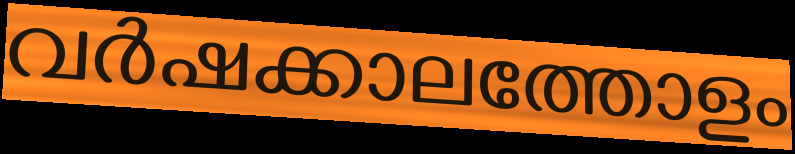
വർഷക്കാലത്തോളം